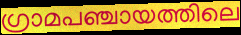
ഗ്രാമപഞ്ചായത്തിലെ